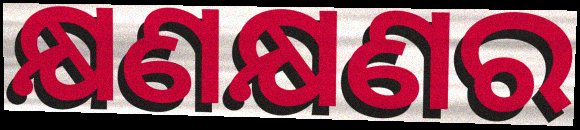
କ୍ଷଣକ୍ଷଣର